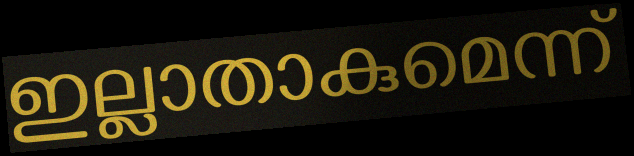
ഇല്ലാതാകുമെന്ന്